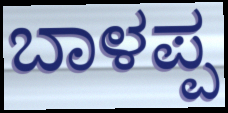
ಬಾಳಪ್ಪ